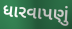
ધારવાપણું